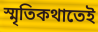
স্মৃতিকথাতেই